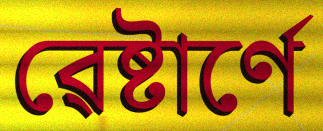
ৱেষ্টাৰ্ণে